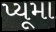
પ્યૂમા